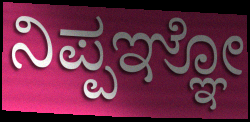
ನಿಪ್ಪಞ್ಞೋ